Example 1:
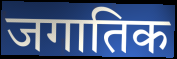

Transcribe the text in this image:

जगातिक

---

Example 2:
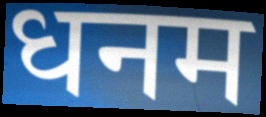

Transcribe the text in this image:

धनम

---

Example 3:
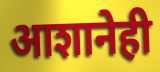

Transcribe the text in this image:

आशानेही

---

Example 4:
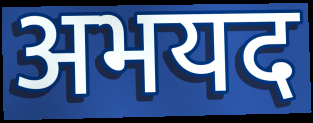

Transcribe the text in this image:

अभयद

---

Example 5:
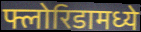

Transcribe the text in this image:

फ्लोरिडामध्ये